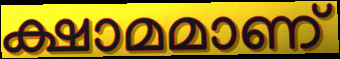
ക്ഷാമമാണ്